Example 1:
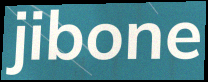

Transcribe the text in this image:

jibone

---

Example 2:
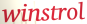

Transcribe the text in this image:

winstrol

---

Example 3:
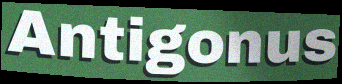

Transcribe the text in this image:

Antigonus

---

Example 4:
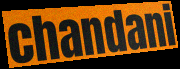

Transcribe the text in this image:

chandani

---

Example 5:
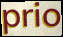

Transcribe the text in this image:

prio